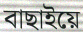
বাছাইয়ে